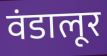
वंडालूर